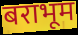
बराभूम